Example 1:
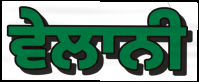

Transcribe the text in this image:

ਵੇਲਾਨੀ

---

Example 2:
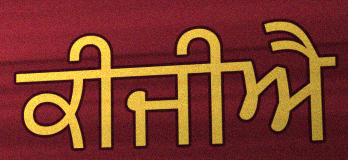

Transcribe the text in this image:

ਕੀਜੀਐ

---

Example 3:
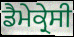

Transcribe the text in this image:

ਡੈਮੇਕ੍ਰੇਸੀ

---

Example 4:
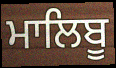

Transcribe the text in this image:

ਮਾਲਿਬੂ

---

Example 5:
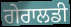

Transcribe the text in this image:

ਗੇਰਾਲਡੀ